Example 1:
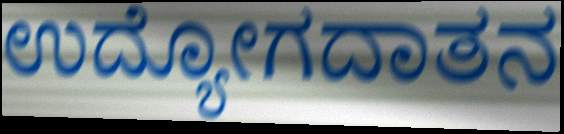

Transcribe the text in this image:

ಉದ್ಯೋಗದಾತನ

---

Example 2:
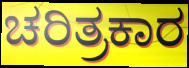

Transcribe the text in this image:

ಚರಿತ್ರಕಾರ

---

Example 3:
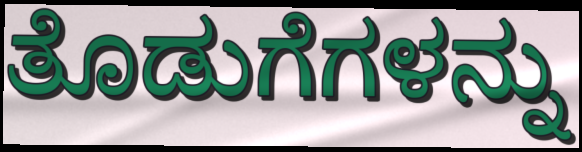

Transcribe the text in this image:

ತೊಡುಗೆಗಳನ್ನು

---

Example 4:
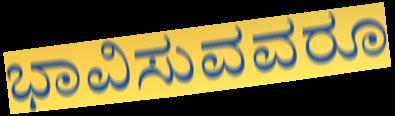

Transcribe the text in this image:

ಭಾವಿಸುವವರೂ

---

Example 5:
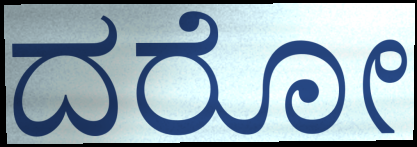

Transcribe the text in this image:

ದರೋ